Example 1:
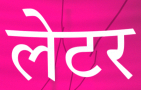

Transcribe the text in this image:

लेटर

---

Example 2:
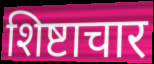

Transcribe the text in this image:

शिष्टाचार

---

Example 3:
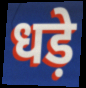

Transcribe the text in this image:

धड़े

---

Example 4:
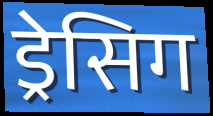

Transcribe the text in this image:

ड्रेसिग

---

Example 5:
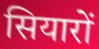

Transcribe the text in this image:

सियारों